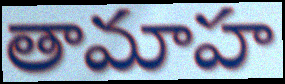
తామాహ